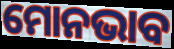
ମୋନଭାବ